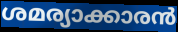
ശമര്യാക്കാരൻ